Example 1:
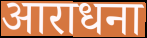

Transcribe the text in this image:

आराधना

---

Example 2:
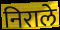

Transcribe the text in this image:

निराले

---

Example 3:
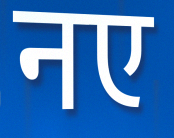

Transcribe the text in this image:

नए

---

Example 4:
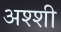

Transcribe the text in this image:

अश्शी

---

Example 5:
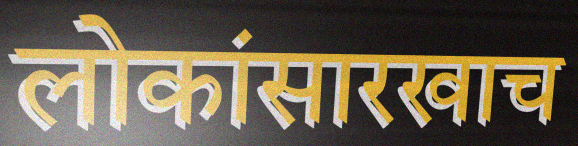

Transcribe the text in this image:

लोकांसारखाच